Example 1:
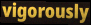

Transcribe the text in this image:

vigorously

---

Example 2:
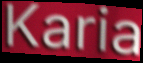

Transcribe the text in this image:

Karia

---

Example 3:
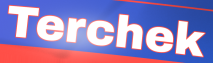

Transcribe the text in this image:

Terchek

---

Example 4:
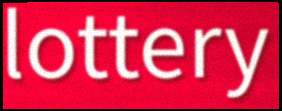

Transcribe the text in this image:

lottery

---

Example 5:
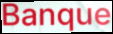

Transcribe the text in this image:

Banque